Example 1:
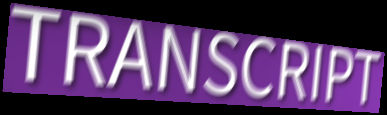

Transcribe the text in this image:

TRANSCRIPT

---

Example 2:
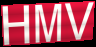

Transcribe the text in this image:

HMV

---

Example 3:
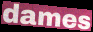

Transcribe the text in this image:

dames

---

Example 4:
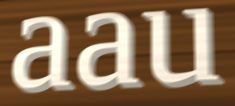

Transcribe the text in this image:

aau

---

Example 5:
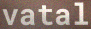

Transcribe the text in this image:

vatal